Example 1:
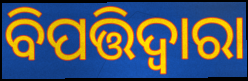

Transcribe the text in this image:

ବିପତ୍ତିଦ୍ୱାରା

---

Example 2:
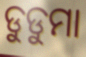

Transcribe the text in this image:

ଡୁଡୁମା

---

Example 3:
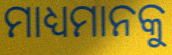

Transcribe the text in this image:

ମାଧ୍ଯମାନକୁ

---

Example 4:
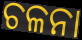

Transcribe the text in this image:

ଚଳନା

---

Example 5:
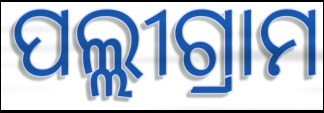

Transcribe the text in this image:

ପଲ୍ଲୀଗ୍ରାମ